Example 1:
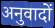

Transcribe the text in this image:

अनुवादों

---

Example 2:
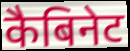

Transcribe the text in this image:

कैबिनेट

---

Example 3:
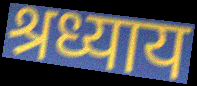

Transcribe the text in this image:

श्रध्याय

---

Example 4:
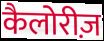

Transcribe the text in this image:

कैलोरीज़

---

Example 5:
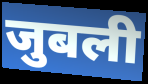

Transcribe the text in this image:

जुबली